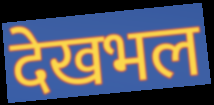
देखभल